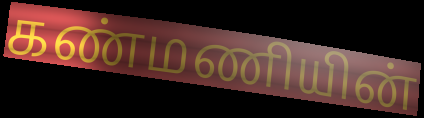
கண்மணியின்